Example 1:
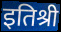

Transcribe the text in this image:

इतिश्री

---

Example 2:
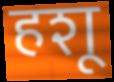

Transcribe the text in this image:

हशू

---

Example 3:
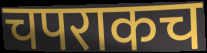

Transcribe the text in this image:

चपराकच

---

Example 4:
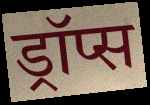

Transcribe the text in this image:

ड्रॉप्स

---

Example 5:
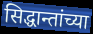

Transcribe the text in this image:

सिद्धान्तांच्या